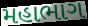
મહાભાગ